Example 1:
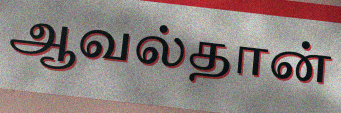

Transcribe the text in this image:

ஆவல்தான்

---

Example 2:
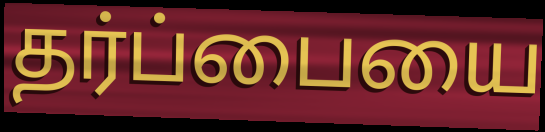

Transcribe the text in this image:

தர்ப்பையை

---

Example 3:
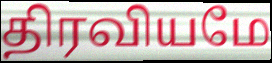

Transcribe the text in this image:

திரவியமே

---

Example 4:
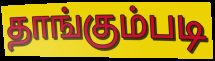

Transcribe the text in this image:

தாங்கும்படி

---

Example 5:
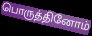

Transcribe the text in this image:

பொருத்தினோம்